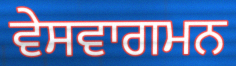
ਵੇਸਵਾਗਮਨ